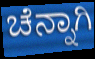
ಚೆನ್ನಾಗಿ